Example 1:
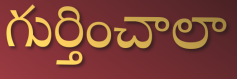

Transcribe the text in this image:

గుర్తించాలా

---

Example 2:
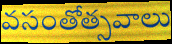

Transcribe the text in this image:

వసంతోత్సవాలు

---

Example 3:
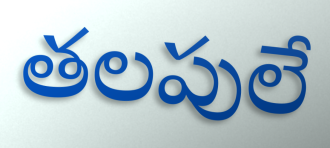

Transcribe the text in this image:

తలపులే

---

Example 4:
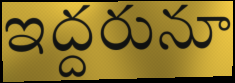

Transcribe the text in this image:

ఇద్దరునూ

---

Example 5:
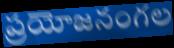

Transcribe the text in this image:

ప్రయోజనంగల